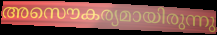
അസൌകര്യമായിരുന്നു